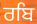
ਰਬਿ